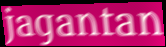
jagantan